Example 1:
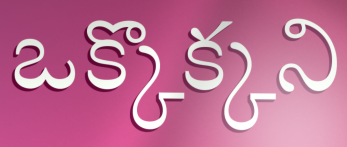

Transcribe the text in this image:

ఒక్కొక్కని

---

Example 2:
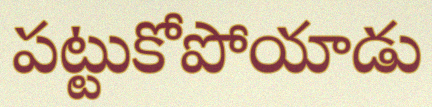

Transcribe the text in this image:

పట్టుకోపోయాడు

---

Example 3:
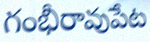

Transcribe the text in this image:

గంభీరావుపేట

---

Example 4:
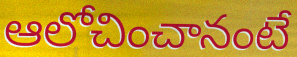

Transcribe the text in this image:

ఆలోచించానంటే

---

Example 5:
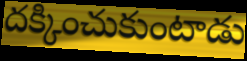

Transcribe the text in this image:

దక్కించుకుంటాడు